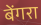
बेंगरा